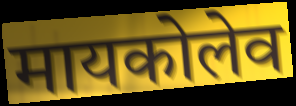
मायकोलेव